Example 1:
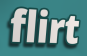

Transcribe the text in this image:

flirt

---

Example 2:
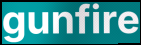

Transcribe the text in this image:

gunfire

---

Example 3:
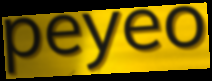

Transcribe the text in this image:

peyeo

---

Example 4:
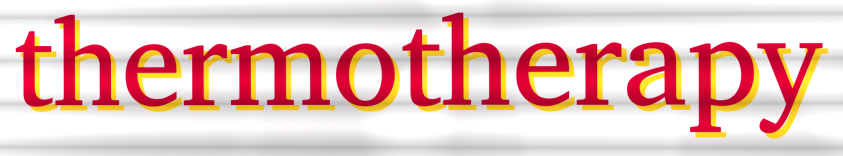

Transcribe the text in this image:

thermotherapy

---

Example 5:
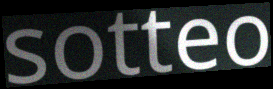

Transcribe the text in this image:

sotteo